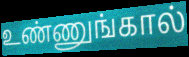
உண்ணுங்கால்